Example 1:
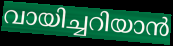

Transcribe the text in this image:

വായിച്ചറിയാൻ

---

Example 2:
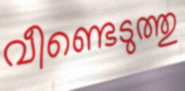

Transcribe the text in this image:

വീണ്ടെടുത്തു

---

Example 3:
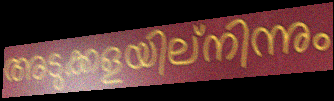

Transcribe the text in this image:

അടുക്കളയില്നിന്നും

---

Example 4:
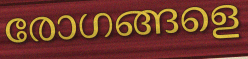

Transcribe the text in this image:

രോഗങ്ങളെ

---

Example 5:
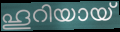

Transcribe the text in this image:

ഹൂറിയായ്